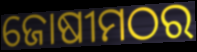
ଜୋଷୀମଠର